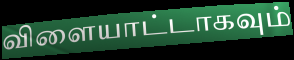
விளையாட்டாகவும்